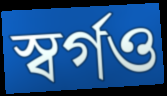
স্বর্গও